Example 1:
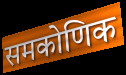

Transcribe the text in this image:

समकोणिक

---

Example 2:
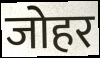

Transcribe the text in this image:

जोहर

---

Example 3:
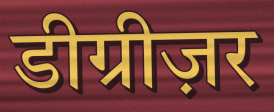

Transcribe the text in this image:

डीग्रीज़र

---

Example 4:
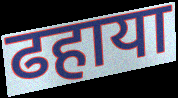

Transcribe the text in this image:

ढहाया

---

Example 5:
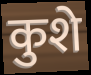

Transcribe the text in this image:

कुशे